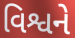
વિશ્વને